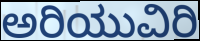
ಅರಿಯುವಿರಿ